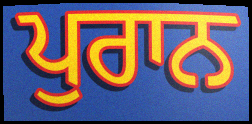
ਪੁਰਾਨ